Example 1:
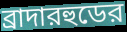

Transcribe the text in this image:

ব্রাদারহুডের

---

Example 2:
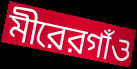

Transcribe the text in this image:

মীরেরগাঁও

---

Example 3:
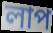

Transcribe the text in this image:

লাপ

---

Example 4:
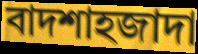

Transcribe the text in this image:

বাদশাহজাদা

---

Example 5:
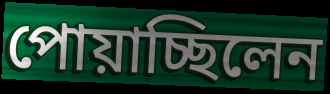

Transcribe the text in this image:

পোয়াচ্ছিলেন